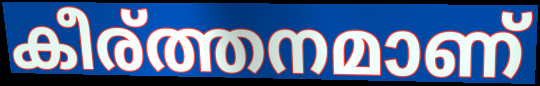
കീര്ത്തനമാണ്